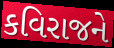
કવિરાજને